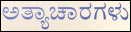
ಅತ್ಯಾಚಾರಗಳು